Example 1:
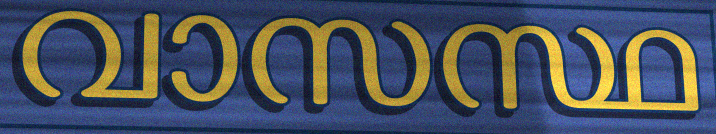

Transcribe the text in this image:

വാസസ്ഥ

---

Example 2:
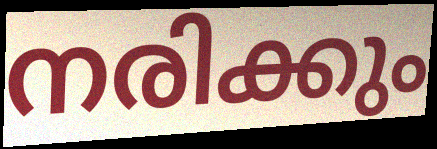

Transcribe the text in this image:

നരിക്കും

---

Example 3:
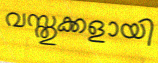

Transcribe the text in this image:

വസ്തുക്കളായി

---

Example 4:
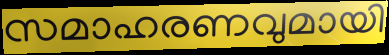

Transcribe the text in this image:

സമാഹരണവുമായി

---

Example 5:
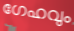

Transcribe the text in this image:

ഗേഹവും